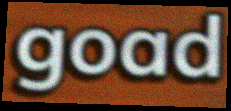
goad